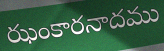
ఝంకారనాదము